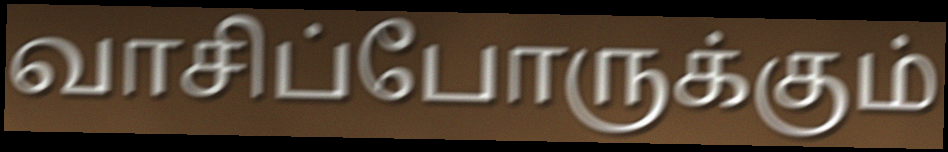
வாசிப்போருக்கும்